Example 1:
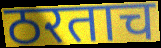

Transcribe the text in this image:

ठरताच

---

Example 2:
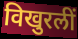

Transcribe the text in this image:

विखुरलीं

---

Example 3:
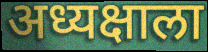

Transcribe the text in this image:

अध्यक्षाला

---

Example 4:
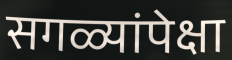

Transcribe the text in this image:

सगळ्यांपेक्षा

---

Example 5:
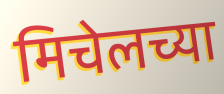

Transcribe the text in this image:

मिचेलच्या